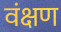
वंक्षण